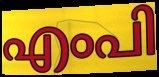
എംപി